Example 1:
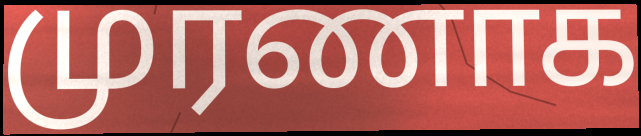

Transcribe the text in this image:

முரணாக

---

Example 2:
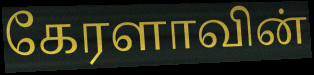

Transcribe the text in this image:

கேரளாவின்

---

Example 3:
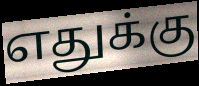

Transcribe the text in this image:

எதுக்கு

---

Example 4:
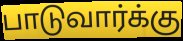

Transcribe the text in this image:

பாடுவார்க்கு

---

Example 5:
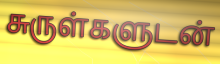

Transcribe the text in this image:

சுருள்களுடன்